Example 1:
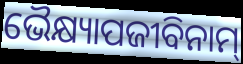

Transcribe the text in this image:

ଭୈକ୍ଷ୍ୟାପଜୀବିନାମ୍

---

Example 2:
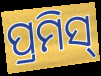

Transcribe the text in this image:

ପ୍ରମିସ୍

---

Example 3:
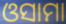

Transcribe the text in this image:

ଓସାମା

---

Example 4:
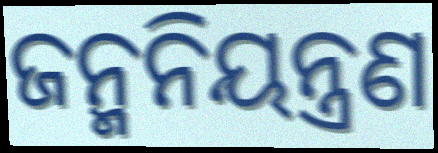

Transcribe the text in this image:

ଜନ୍ମନିୟନ୍ତ୍ରଣ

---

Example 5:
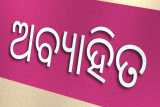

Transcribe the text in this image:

ଅବ୍ୟାହିତ